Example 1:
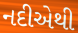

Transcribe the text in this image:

નદીએથી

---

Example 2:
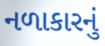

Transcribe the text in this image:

નળાકારનું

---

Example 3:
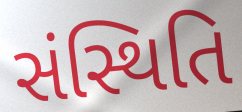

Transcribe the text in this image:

સંસ્થિતિ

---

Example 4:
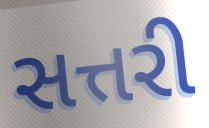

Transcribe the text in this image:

સત્તરી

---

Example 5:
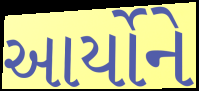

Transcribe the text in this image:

આર્યોને